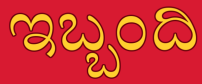
ಇಬ್ಬಂದಿ